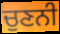
ਚੁਣਨੀ